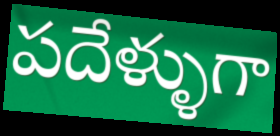
పదేళ్ళుగా